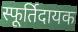
स्फूर्तिदायक